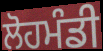
ਲੋਹਮੰਡੀ